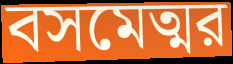
বসমেত্মর